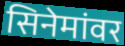
सिनेमांवर